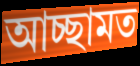
আচ্ছামত